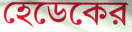
হেডেকের